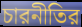
চারনীতির